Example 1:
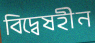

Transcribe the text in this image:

বিদ্বেষহীন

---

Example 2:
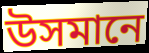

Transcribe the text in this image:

উসমানে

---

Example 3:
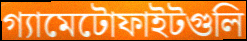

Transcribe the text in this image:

গ্যামেটোফাইটগুলি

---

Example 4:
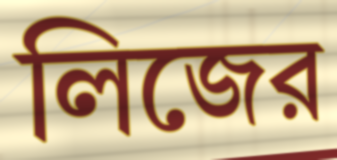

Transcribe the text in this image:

লিজের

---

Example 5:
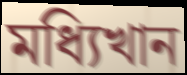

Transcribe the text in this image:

মধ্যিখান